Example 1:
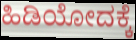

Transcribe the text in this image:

ಹಿಡಿಯೋದಕ್ಕೆ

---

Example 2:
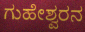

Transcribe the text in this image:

ಗುಹೇಶ್ವರನ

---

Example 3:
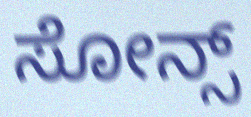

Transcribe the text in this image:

ಸೋನ್ಸ್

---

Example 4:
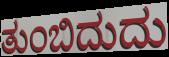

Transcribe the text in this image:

ತುಂಬಿದುದು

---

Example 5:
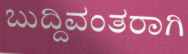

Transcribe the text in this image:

ಬುದ್ದಿವಂತರಾಗಿ